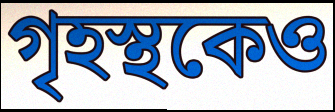
গৃহস্থকেও